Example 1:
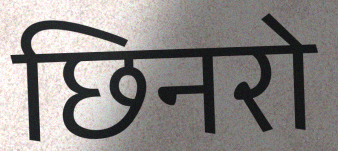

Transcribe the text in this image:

छिनरो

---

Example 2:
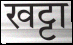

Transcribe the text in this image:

खट्टा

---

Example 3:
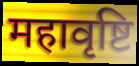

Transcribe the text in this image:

महावृष्टि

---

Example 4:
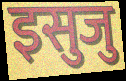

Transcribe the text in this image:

इसुजु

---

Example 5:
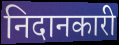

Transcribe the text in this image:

निदानकारी